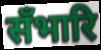
सँभारि